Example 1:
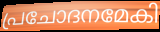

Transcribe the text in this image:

പ്രചോദനമേകി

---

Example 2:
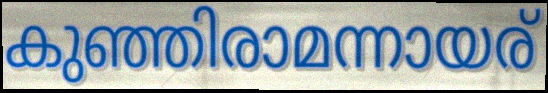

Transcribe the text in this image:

കുഞ്ഞിരാമന്നായര്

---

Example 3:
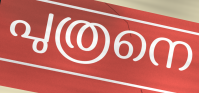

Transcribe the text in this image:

പുത്രനെ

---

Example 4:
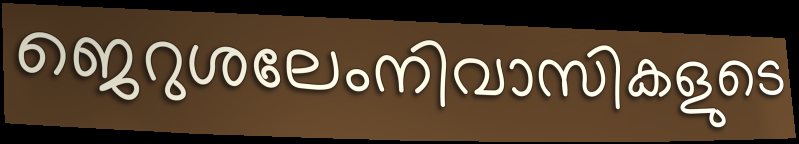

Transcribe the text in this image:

ജെറുശലേംനിവാസികളുടെ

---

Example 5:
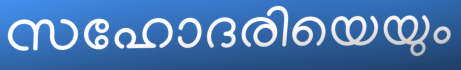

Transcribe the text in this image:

സഹോദരിയെയും